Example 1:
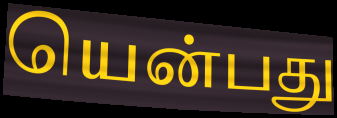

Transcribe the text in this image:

யென்பது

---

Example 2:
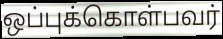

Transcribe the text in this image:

ஒப்புக்கொள்பவர்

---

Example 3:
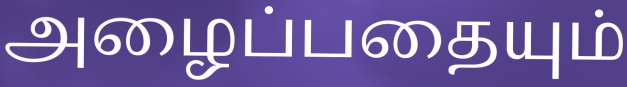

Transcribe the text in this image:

அழைப்பதையும்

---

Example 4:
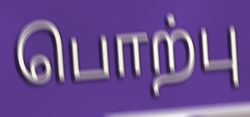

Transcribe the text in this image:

பொற்பு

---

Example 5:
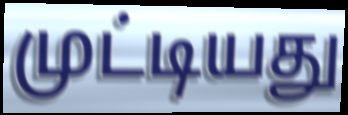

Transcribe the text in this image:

முட்டியது